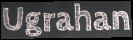
Ugrahan